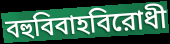
বহুবিবাহবিরোধী